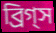
ব্রিগ্‌স